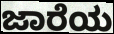
ಜಾರೆಯ